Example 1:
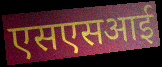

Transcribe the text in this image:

एसएसआई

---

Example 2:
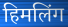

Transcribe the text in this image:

हिमलिंग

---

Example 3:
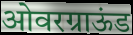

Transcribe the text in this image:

ओवरग्राऊंड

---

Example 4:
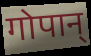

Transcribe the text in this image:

गोपान्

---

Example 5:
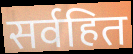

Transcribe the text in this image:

सर्वहित